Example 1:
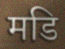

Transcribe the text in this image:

मडि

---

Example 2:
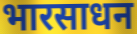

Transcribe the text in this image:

भारसाधन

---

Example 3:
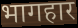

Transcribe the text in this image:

भागहार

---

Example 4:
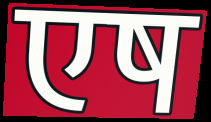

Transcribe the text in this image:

एष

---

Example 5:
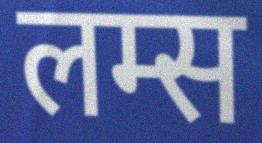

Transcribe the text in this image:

लम्स